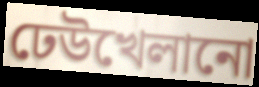
ঢেউখেলানো